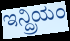
ಇನ್ದ್ರಿಯಂ